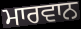
ਮਾਰਵਾਨ